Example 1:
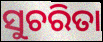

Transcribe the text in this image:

ସୁଚରିତା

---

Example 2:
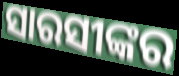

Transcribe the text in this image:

ସାରସୀଙ୍କର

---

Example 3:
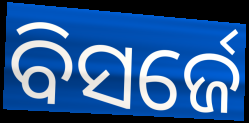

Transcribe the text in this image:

ବିସର୍ଜେ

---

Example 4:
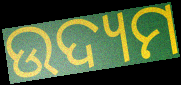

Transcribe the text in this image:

ଉଦ୍ୟମ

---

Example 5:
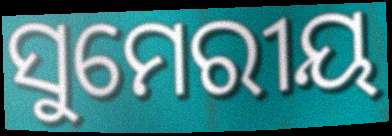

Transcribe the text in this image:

ସୁମେରୀୟ